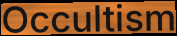
Occultism